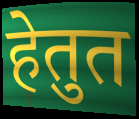
हेतुत